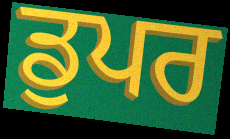
ਡੁਪਰ